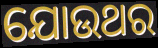
ଯୋଉଥର